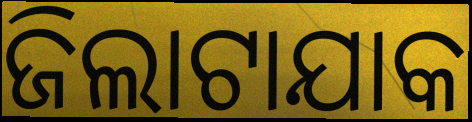
ଜିଲାଟାଯାକ